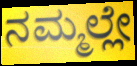
ನಮ್ಮಲ್ಲೇ